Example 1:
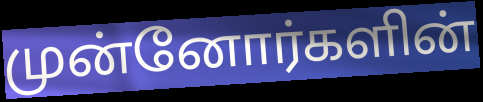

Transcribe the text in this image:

முன்னோர்களின்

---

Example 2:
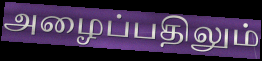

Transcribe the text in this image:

அழைப்பதிலும்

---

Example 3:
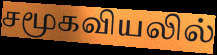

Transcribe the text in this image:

சமூகவியலில்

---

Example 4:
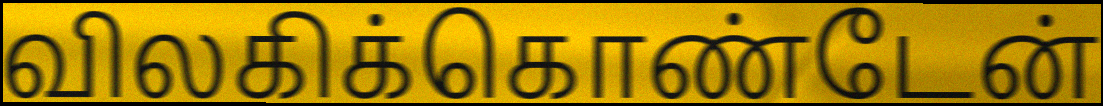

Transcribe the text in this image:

விலகிக்கொண்டேன்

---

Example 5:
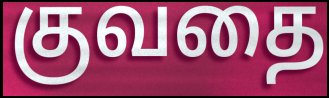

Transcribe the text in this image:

குவதை